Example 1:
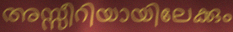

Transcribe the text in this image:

അസ്സീറിയായിലേക്കും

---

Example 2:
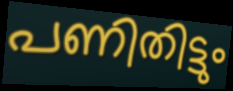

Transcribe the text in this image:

പണിതിട്ടും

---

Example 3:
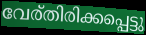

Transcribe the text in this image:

വേര്തിരിക്കപ്പെട്ടു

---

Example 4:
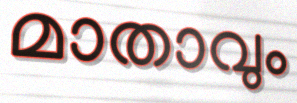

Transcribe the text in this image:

മാതാവും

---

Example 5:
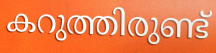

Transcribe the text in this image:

കറുത്തിരുണ്ട്